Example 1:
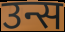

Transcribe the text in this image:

उन्स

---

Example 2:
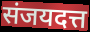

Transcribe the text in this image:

संजयदत्त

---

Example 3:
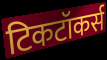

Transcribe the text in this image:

टिकटॉकर्स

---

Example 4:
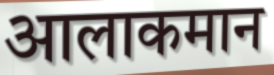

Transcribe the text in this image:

आलाकमान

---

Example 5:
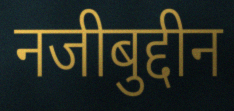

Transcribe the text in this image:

नजीबुद्दीन